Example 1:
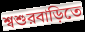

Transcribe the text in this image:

শ্বশুরবাড়িতে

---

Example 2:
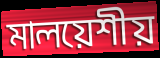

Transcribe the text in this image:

মালয়েশীয়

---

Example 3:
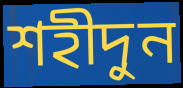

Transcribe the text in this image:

শহীদুন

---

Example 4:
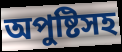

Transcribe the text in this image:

অপুষ্টিসহ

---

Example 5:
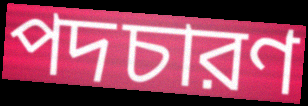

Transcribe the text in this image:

পদচারণ